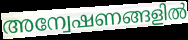
അന്വേഷണങ്ങളിൽ